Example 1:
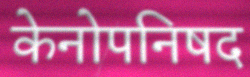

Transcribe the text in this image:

केनोपनिषद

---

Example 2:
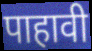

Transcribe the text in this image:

पाहावी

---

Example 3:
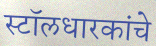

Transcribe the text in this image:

स्टॉलधारकांचे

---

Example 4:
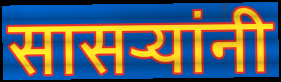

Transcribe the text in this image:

सासर्‍यांनी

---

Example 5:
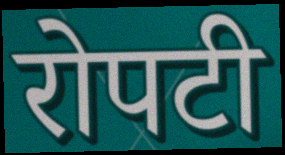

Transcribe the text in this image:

रोपटी